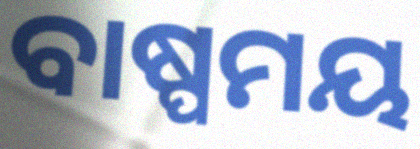
ବାଷ୍ପମୟ